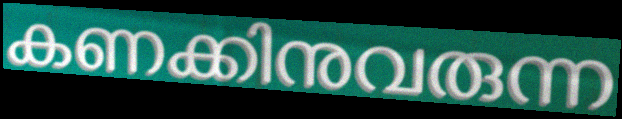
കണക്കിനുവരുന്ന